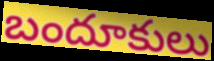
బందూకులు